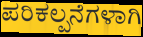
ಪರಿಕಲ್ಪನೆಗಳಾಗಿ